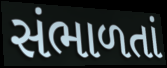
સંભાળતાં